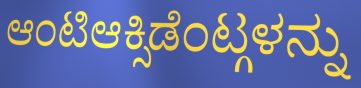
ಆಂಟಿಆಕ್ಸಿಡೆಂಟ್ಗಳನ್ನು